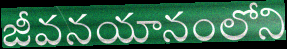
జీవనయానంలోని